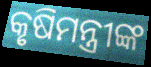
କୃଷିମନ୍ତ୍ରୀଙ୍କ